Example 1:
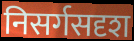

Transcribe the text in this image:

निसर्गसदृश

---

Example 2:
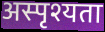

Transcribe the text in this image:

अस्पृश्यता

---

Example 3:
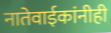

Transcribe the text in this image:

नातेवाईकांनीही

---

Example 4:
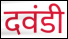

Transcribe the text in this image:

दवंडी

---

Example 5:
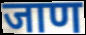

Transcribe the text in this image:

जाण